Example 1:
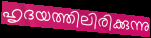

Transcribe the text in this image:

ഹൃദയത്തിലിരിക്കുന്നു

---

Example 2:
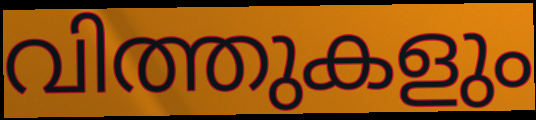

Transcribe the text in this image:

വിത്തുകളും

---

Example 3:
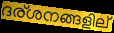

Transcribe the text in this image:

ദര്ശനങ്ങളില്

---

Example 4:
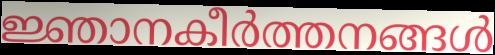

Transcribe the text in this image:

ജ്ഞാനകീർത്തനങ്ങൾ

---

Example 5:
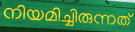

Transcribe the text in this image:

നിയമിച്ചിരുന്നത്